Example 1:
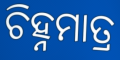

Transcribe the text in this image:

ଚିହ୍ନମାତ୍ର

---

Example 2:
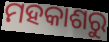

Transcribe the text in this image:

ମହକାଶରୁ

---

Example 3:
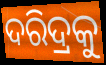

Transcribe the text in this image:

ଦରିଦ୍ରକୁ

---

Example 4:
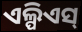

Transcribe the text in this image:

ଏଲ୍ପିଏସ୍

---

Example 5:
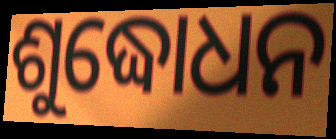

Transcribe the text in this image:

ଶୁଦ୍ଧୋଧନ